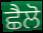
ਛੈਲੋ